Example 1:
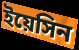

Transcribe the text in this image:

ইয়েসিন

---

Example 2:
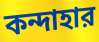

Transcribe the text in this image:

কন্দাহার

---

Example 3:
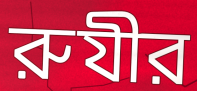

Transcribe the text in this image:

রুযীর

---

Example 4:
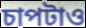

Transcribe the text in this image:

চাপটাও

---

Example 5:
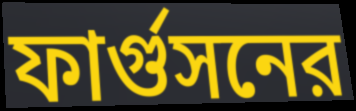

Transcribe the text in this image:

ফার্গুসনের